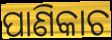
ପାଣିକାଚ